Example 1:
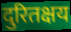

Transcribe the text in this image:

दुरितक्षय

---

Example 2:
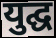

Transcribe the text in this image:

युद्घ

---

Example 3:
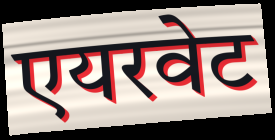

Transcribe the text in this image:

एयरवेट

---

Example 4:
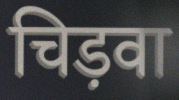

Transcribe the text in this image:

चिड़वा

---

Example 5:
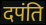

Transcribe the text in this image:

दपंति